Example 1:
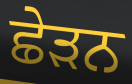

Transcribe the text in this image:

ਛੇੜਨ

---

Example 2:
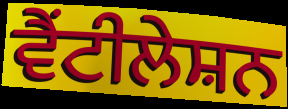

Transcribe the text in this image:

ਵੈਂਟੀਲੇਸ਼ਨ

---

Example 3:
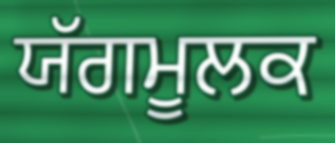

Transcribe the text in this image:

ਯੱਗਮੂਲਕ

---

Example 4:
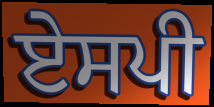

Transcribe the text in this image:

ਏਸਪੀ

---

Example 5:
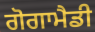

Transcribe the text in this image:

ਗੋਗਾਮੈਡੀ